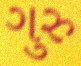
ગુરુ